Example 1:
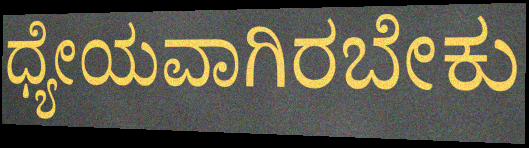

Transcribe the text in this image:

ಧ್ಯೇಯವಾಗಿರಬೇಕು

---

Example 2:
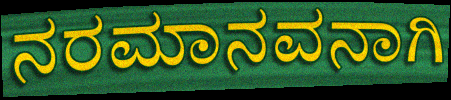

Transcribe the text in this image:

ನರಮಾನವನಾಗಿ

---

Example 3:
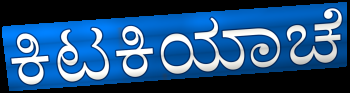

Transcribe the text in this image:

ಕಿಟಕಿಯಾಚೆ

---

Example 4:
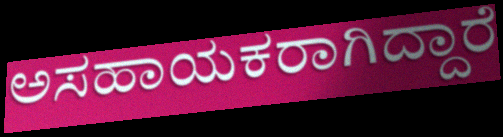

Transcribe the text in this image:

ಅಸಹಾಯಕರಾಗಿದ್ದಾರೆ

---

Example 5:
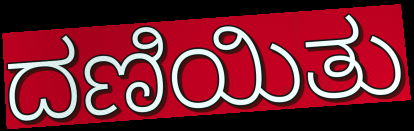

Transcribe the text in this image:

ದಣಿಯಿತು